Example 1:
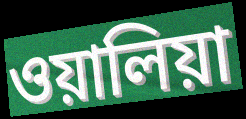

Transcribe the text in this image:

ওয়ালিয়া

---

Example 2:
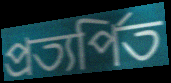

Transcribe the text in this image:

প্রত্যর্পিত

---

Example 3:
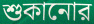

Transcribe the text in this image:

শুকানোর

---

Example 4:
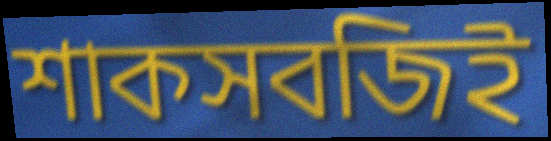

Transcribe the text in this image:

শাকসবজিই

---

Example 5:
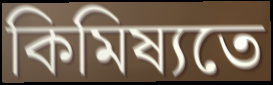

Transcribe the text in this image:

কিমিষ্যতে